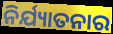
ନିର୍ଯ୍ୟାତନାର